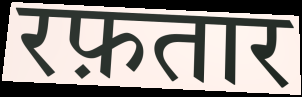
रफ़तार